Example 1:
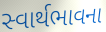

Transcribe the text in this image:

સ્વાર્થભાવના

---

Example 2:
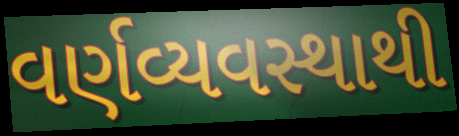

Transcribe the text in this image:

વર્ણવ્યવસ્થાથી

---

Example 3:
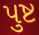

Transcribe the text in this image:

પુષ્ટ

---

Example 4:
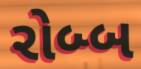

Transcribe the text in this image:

રોબ્બ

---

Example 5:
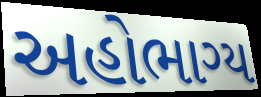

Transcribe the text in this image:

અહોભાગ્ય